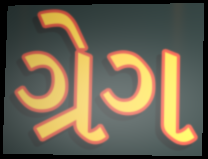
ગ્રેગ